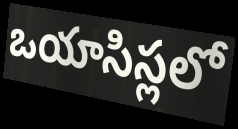
ఒయాసిస్లలో